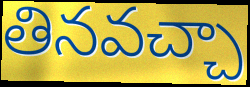
తినవచ్చా